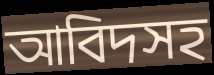
আবিদসহ